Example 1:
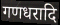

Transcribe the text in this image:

गणधरादि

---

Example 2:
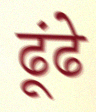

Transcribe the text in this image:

ढूंढे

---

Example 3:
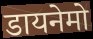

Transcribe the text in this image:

डायनेमो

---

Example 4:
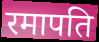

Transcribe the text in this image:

रमापति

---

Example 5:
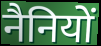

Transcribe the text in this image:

नैनियों